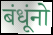
बंधूंनो